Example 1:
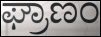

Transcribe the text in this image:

ಘ್ರಾಣಂ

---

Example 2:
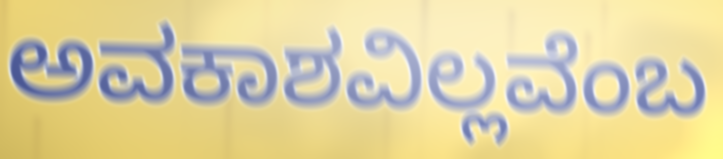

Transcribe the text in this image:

ಅವಕಾಶವಿಲ್ಲವೆಂಬ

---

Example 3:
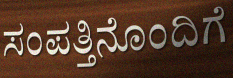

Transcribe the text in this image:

ಸಂಪತ್ತಿನೊಂದಿಗೆ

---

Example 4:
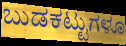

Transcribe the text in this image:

ಬುಡಕಟ್ಟುಗಳೂ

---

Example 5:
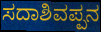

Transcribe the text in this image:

ಸದಾಶಿವಪ್ಪನ